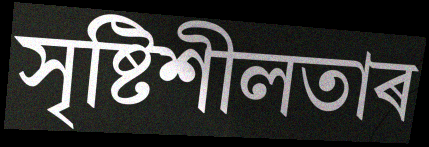
সৃষ্টিশীলতাৰ